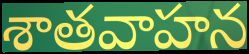
శాతవాహన